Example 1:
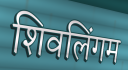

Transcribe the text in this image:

शिवलिंगम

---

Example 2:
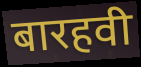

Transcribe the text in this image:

बारहवी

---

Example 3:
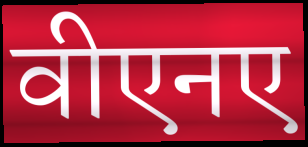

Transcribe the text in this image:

वीएनए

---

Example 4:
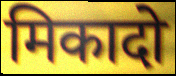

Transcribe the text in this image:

मिकादो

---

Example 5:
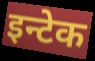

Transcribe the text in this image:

इन्टेक